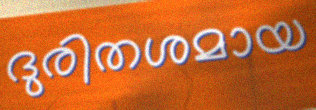
ദുരിതശമായ